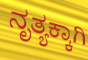
ನೃತ್ಯಕ್ಕಾಗಿ